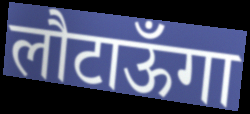
लौटाऊँगा